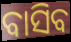
ବାସିବ